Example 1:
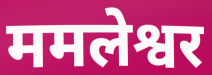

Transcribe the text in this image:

ममलेश्वर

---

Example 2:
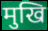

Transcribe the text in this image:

मुखि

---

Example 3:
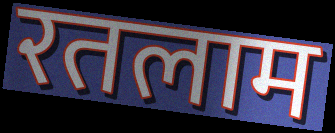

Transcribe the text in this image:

रतलाम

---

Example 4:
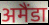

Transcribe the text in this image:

अमैंडा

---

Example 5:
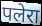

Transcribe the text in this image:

पलेरा